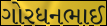
ગોરધનભાઈ